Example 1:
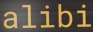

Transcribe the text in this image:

alibi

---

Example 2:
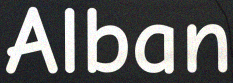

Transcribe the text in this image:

Alban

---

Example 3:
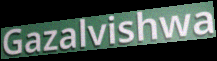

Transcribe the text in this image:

Gazalvishwa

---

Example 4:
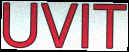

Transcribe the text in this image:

UVIT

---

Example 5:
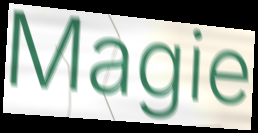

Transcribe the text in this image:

Magie